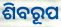
ଶିବରୂପ